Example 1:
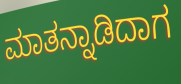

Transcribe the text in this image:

ಮಾತನ್ನಾಡಿದಾಗ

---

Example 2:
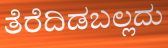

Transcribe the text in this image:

ತೆರೆದಿಡಬಲ್ಲದು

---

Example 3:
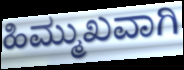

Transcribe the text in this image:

ಹಿಮ್ಮುಖವಾಗಿ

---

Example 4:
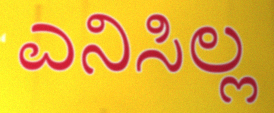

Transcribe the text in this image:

ಎನಿಸಿಲ್ಲ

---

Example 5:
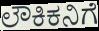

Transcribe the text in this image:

ಲೌಕಿಕನಿಗೆ